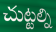
చుట్టల్ని